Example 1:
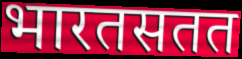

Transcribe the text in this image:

भारतसतत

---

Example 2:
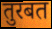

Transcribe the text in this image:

तुरबत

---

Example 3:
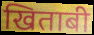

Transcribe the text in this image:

खिताबी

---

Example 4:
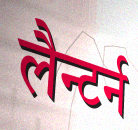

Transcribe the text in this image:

लैन्टर्न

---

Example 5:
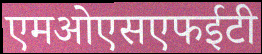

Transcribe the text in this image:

एमओएसएफईटी